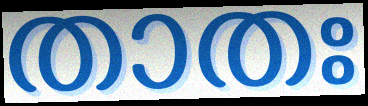
താതഃ